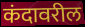
कंदावरील